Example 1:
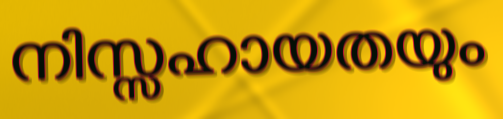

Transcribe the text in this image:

നിസ്സഹായതയും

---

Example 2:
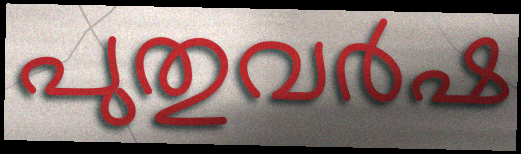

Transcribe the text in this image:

പുതുവർഷ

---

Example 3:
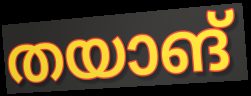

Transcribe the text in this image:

തയാങ്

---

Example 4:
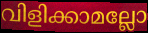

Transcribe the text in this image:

വിളിക്കാമല്ലോ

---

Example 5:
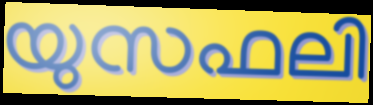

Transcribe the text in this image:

യുസഫലി